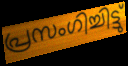
പ്രസംഗിച്ചിട്ടു്